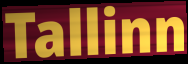
Tallinn